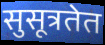
सुसूत्रतेत